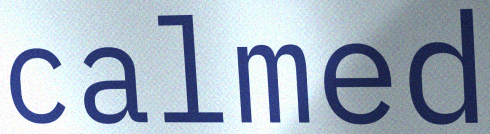
calmed